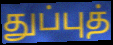
துப்புத்